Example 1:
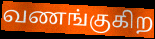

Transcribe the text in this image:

வணங்குகிற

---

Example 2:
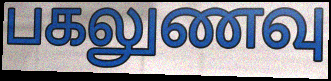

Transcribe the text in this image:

பகலுணவு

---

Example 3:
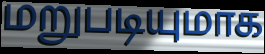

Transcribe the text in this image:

மறுபடியுமாக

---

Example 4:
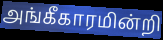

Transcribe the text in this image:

அங்கீகாரமின்றி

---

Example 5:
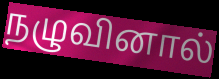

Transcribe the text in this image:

நழுவினால்